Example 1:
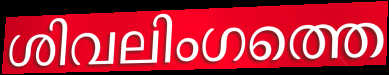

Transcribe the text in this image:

ശിവലിംഗത്തെ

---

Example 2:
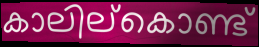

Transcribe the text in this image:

കാലില്കൊണ്ട്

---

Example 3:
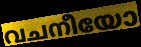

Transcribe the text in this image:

വചനീയോ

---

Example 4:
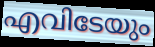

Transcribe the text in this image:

എവിടേയും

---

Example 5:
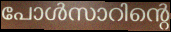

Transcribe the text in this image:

പോൾസാറിന്റെ